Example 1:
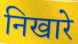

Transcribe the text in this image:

निखारे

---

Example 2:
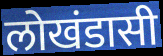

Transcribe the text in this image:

लोखंडासी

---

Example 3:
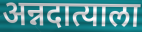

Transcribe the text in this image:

अन्नदात्याला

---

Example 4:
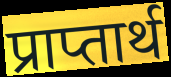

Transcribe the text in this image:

प्राप्तार्थ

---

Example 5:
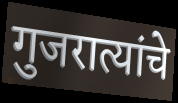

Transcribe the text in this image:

गुजरात्यांचे